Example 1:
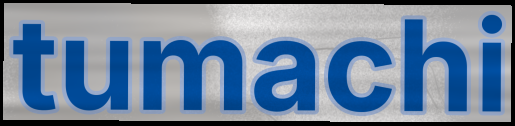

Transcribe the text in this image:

tumachi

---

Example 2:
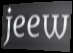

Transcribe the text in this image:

jeew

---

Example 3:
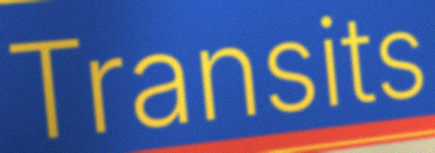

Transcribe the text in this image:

Transits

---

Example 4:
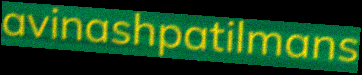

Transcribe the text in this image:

avinashpatilmans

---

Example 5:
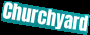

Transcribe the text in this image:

Churchyard